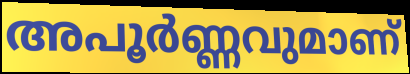
അപൂർണ്ണവുമാണ്